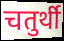
चतुर्थी